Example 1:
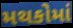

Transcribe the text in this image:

મથકોમાં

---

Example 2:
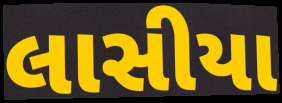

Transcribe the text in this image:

લાસીયા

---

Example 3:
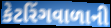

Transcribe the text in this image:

કેટરિંગવાળાની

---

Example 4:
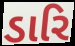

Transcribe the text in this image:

ડારિ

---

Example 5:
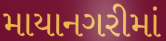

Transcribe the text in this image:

માયાનગરીમાં